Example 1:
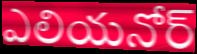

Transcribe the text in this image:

ఎలియనోర్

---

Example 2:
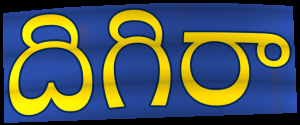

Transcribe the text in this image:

దిగిరా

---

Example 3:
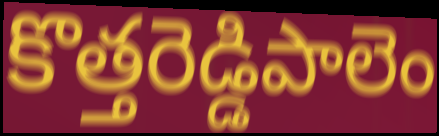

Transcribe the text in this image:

కొత్తరెడ్డిపాలెం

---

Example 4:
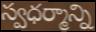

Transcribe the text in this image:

స్వధర్మాన్ని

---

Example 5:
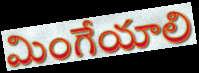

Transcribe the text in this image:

మింగేయాలి